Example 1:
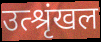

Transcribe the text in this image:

उत्श्रृंखल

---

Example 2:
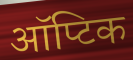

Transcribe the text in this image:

ऑप्टिक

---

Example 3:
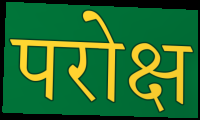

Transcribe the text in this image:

परोक्ष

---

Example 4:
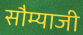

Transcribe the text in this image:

सौम्याजी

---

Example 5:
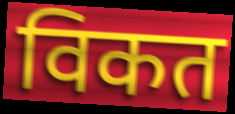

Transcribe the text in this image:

विकत